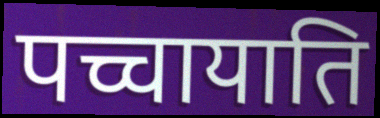
पच्चायाति